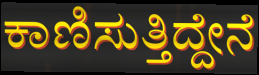
ಕಾಣಿಸುತ್ತಿದ್ದೇನೆ